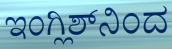
ಇಂಗ್ಲಿಶ್‌ನಿಂದ